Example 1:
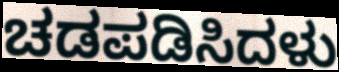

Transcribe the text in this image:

ಚಡಪಡಿಸಿದಳು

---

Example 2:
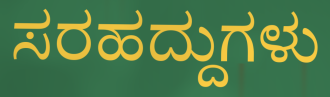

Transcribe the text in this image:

ಸರಹದ್ದುಗಳು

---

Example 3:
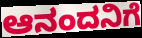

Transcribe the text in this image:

ಆನಂದನಿಗೆ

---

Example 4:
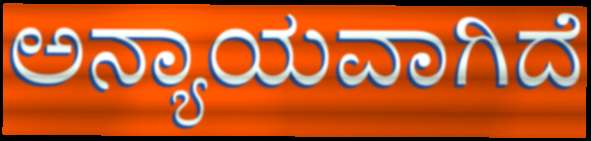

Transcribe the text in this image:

ಅನ್ಯಾಯವಾಗಿದೆ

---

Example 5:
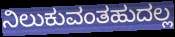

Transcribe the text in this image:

ನಿಲುಕುವಂತಹುದಲ್ಲ